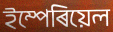
ইম্পেৰিয়েল